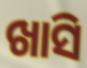
ଖାସି